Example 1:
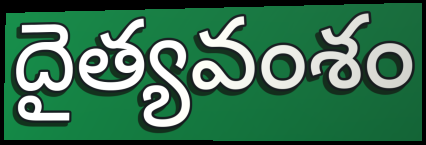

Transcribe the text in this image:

దైత్యవంశం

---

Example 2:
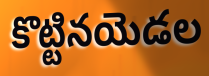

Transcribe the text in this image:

కొట్టినయెడల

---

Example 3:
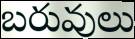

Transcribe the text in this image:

బరువులు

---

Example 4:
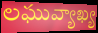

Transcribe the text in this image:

లఘువ్యాఖ్య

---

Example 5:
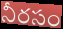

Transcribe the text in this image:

నీరసం